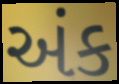
અંક